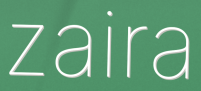
zaira